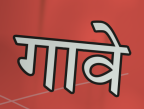
गावे